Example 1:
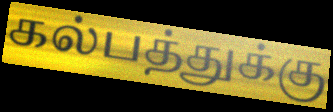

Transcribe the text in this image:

கல்பத்துக்கு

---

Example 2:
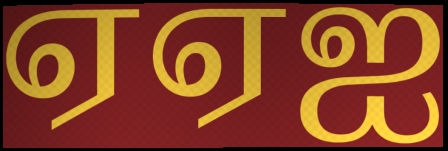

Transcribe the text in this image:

ஏஏஐ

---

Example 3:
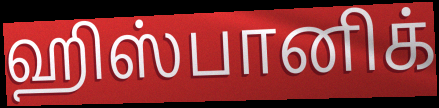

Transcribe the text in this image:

ஹிஸ்பானிக்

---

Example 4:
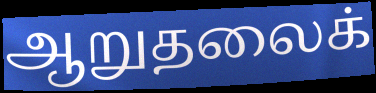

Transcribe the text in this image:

ஆறுதலைக்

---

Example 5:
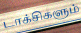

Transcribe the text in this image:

டாக்சிகளும்